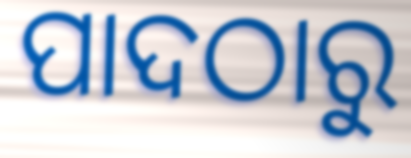
ପାଦଠାରୁ